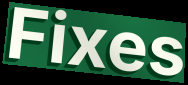
Fixes